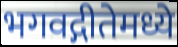
भगवद्गीतेमध्ये